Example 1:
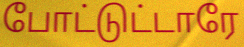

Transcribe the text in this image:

போட்டுட்டாரே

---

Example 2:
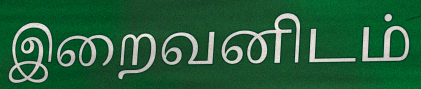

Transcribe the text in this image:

இறைவனிடம்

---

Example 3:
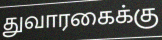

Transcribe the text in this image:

துவாரகைக்கு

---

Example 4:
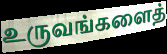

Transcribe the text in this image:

உருவங்களைத்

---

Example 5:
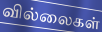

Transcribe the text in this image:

வில்லைகள்